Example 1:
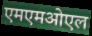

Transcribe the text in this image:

एमएमओएल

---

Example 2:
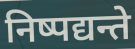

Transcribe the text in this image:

निष्पद्यन्ते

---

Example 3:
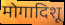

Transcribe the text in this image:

मोगादिशू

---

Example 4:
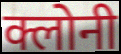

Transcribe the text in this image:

क्लोनी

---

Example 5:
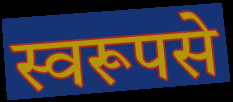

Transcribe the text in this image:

स्वरूपसे